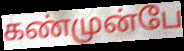
கண்முன்பே